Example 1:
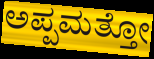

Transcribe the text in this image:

ಅಪ್ಪಮತ್ತೋ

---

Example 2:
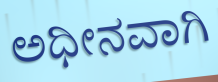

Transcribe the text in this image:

ಅಧೀನವಾಗಿ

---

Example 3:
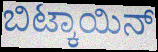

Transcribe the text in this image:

ಬಿಟ್ಕಾಯಿನ್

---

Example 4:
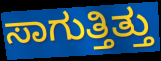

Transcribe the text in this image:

ಸಾಗುತ್ತಿತ್ತು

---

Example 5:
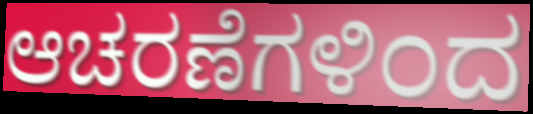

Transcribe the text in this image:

ಆಚರಣೆಗಳಿಂದ